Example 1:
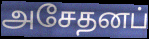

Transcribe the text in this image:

அசேதனப்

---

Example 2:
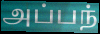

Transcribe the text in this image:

அப்பந்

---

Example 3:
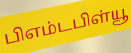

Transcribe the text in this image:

பிஎம்டபிள்யூ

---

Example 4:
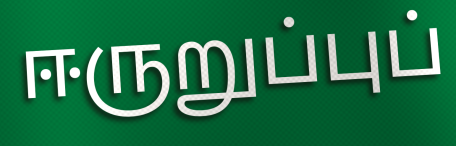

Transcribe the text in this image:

ஈருறுப்புப்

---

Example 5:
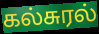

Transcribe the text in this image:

கல்சுரல்